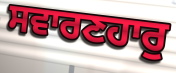
ਸਵਾਰਣਹਾਰੁ